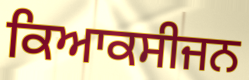
ਕਿਆਕਸੀਜਨ